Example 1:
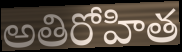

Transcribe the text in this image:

అతిరోహిత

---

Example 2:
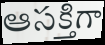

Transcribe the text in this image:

ఆసక్తిగా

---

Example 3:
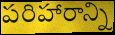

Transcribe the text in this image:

పరిహారాన్ని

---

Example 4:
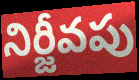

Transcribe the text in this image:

నిర్జీవపు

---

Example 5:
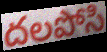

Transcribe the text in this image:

దలపోసి